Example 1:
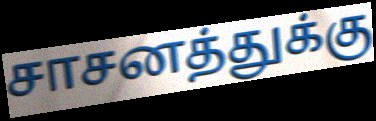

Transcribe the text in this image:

சாசனத்துக்கு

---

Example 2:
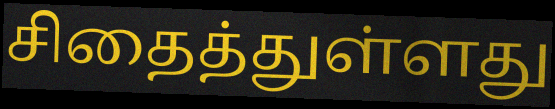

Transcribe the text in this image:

சிதைத்துள்ளது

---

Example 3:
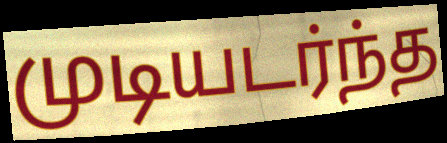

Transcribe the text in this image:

முடியடர்ந்த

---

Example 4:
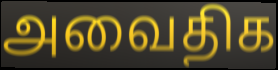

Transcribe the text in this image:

அவைதிக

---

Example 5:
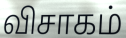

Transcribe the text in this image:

விசாகம்